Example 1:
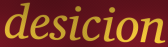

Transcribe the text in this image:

desicion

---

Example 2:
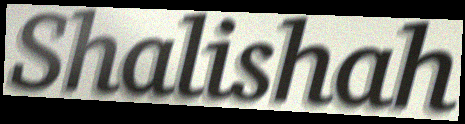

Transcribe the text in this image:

Shalishah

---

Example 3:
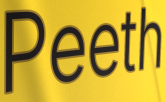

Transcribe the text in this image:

Peeth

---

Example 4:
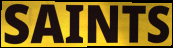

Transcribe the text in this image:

SAINTS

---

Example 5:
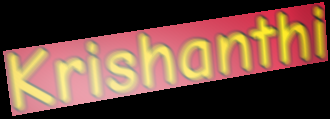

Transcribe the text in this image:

Krishanthi